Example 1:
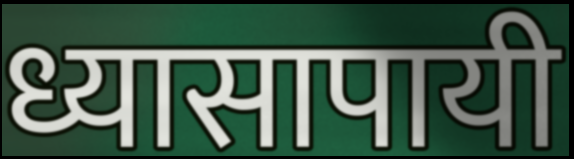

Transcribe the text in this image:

ध्यासापायी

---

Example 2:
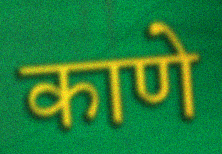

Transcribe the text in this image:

काणे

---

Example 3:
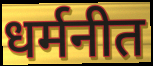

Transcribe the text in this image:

धर्मनीत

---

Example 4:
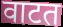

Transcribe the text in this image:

वाटत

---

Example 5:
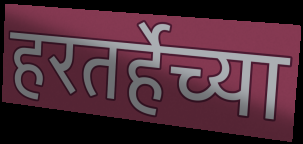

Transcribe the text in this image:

हरतर्हेच्या